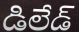
డిలేడ్